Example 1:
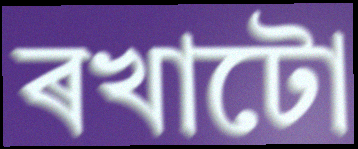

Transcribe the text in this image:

ৰখাটো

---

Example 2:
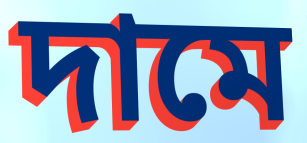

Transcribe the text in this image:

দামে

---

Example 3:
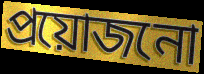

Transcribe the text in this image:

প্ৰয়োজনো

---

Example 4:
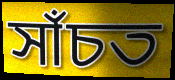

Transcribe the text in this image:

সাঁচত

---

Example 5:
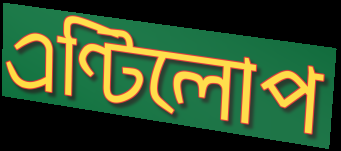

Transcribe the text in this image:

এণ্টিলোপ